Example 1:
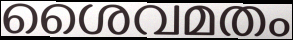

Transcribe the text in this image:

ശൈവമതം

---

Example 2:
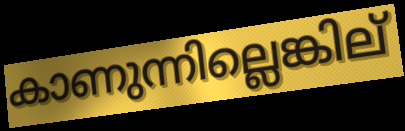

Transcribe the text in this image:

കാണുന്നില്ലെങ്കില്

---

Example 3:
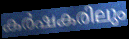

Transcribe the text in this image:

കർഷകരിലും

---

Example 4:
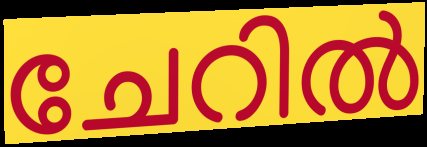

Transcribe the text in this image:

ചേറിൽ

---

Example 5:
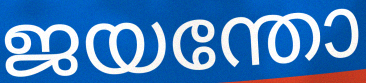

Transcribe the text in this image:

ജയന്തോ